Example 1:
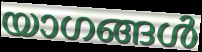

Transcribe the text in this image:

യാഗങ്ങൾ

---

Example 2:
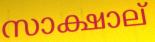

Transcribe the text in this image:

സാക്ഷാല്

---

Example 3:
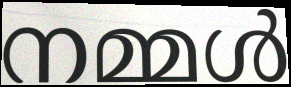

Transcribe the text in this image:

നമ്മൾ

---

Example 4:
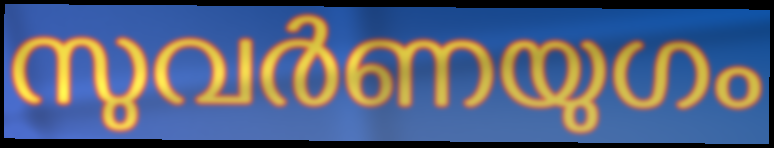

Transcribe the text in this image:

സുവർണയുഗം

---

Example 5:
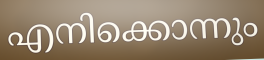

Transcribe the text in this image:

എനിക്കൊന്നും